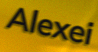
Alexei